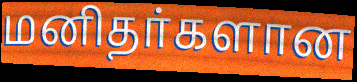
மனிதர்களான